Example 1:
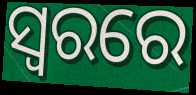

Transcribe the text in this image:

ସ୍ୱରରେ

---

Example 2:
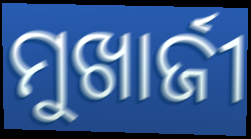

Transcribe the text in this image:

ମୁଖାର୍ଜୀ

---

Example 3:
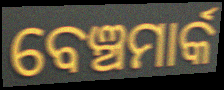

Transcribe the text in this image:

ବେଞ୍ଚମାର୍କ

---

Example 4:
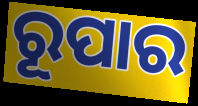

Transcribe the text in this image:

ରୂପାର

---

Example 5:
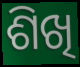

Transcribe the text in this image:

ଶିଖି